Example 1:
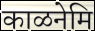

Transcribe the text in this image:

काळनेमि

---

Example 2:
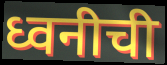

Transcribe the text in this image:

ध्वनीची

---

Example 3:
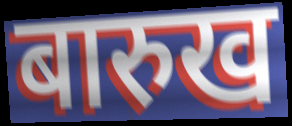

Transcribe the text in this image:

बारुख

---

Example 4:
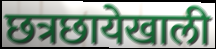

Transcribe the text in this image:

छत्रछायेखाली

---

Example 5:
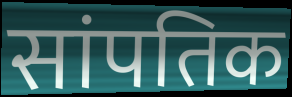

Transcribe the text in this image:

सांपतिक